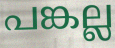
പങ്കല്ല